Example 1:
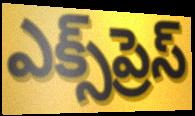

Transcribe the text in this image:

ఎక్స్‌ప్రెస్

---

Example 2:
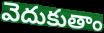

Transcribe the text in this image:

వెదుకుతాం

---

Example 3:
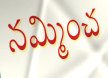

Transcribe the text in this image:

నమ్మించ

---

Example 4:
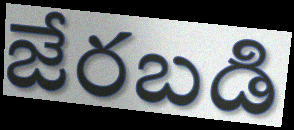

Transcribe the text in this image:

జేరబడి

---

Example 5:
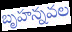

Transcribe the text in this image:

బృహన్నవల